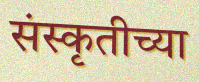
संस्कृतीच्या